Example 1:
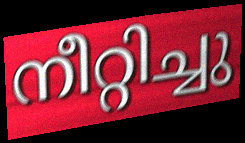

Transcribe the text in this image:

നീറ്റിച്ചു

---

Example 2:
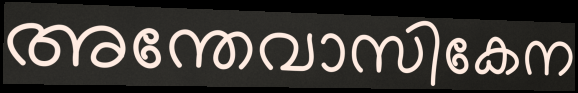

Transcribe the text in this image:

അന്തേവാസികേന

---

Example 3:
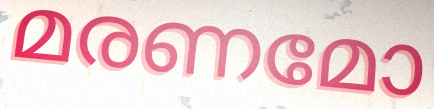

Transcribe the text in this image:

മരണമോ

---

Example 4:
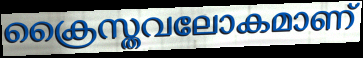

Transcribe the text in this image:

ക്രൈസ്തവലോകമാണ്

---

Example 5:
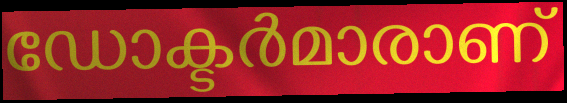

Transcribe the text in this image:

ഡോക്ടർമാരാണ്